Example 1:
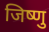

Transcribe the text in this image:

जिष्णु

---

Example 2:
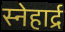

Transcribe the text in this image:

स्नेहार्द्र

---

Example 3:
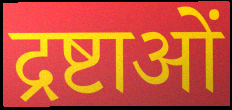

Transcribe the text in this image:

द्रष्टाओं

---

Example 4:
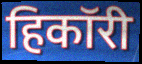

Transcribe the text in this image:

हिकॉरी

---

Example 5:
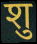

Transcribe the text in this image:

शु